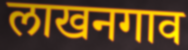
लाखनगाव